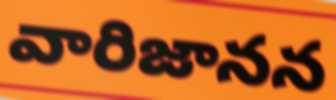
వారిజానన